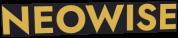
NEOWISE